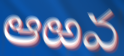
ఆఱవ